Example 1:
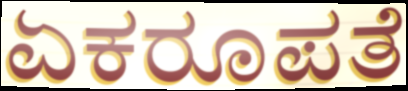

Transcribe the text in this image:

ಏಕರೂಪತೆ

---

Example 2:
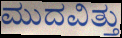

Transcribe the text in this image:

ಮುದವಿತ್ತು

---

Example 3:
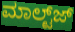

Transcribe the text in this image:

ಮಾಲ್ಟ್‌ಜ್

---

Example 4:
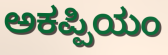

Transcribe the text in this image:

ಅಕಪ್ಪಿಯಂ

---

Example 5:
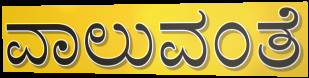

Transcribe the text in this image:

ವಾಲುವಂತೆ